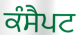
ਕੰਸੈਪਟ